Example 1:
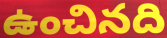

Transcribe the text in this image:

ఉంచినది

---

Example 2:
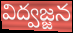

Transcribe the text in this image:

విద్వజ్జన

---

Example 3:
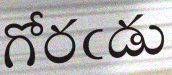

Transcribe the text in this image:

గోరఁడు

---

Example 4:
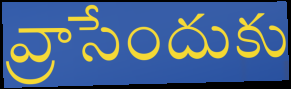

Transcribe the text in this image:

వ్రాసేందుకు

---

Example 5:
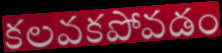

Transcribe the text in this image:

కలవకపోవడం